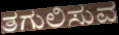
ತಗುಲಿಸುವ